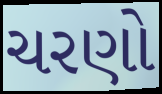
ચરણો